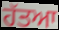
ਹੱਤਆ